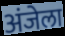
अंजेला